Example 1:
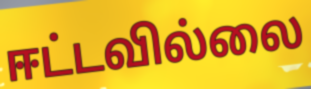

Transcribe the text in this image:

ஈட்டவில்லை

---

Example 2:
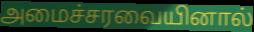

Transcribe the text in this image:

அமைச்சரவையினால்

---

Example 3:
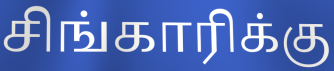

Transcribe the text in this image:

சிங்காரிக்கு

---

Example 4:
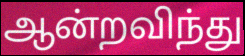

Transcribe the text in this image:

ஆன்றவிந்து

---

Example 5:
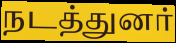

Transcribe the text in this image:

நடத்துனர்